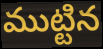
ముట్టిన